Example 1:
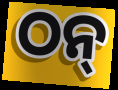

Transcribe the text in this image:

ଠନ୍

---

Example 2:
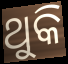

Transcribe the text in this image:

ଥୁକି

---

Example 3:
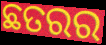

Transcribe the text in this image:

ଛତରର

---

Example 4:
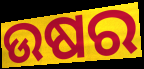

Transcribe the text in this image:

ଉଷର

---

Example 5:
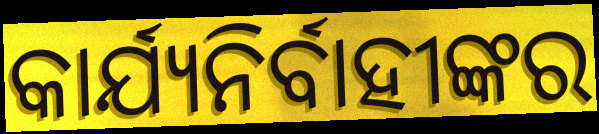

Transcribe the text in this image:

କାର୍ଯ୍ୟନିର୍ବାହୀଙ୍କର